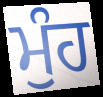
ਮੁੰਹ